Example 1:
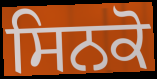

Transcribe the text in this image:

ਸਿਨਕੋ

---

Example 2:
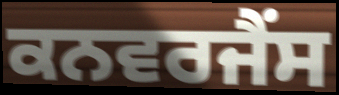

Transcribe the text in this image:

ਕਨਵਰਜੈਂਸ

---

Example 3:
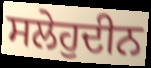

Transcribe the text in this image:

ਸਲੇਹੁਦੀਨ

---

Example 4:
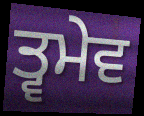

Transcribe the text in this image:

ਤ੍ਵਮੇਵ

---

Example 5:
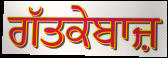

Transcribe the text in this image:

ਗੱਤਕੇਬਾਜ਼